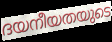
ദയനീയതയുടെ